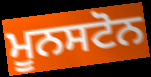
ਮੂਨਸਟੋਨ